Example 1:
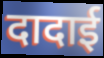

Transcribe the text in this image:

दादाई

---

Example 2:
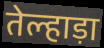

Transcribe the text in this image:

तेल्हाड़ा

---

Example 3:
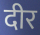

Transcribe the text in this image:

दीर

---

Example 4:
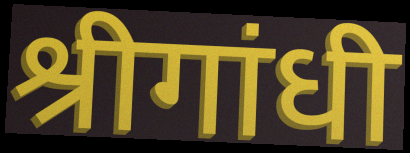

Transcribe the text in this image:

श्रीगांधी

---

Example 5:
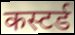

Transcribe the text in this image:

कस्टर्ड